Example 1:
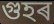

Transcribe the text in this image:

গুহৰ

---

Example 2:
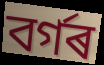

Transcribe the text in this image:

বৰ্গৰ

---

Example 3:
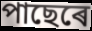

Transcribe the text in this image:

পাছেৰে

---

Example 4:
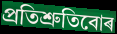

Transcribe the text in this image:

প্ৰতিশ্ৰুতিবোৰ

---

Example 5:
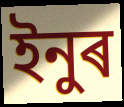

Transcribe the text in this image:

ইনুৰ